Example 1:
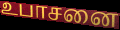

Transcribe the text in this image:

உபாசனை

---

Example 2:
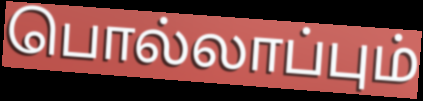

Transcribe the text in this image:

பொல்லாப்பும்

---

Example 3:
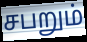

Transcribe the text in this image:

சபறும்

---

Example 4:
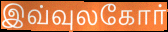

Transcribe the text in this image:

இவ்வுலகோர்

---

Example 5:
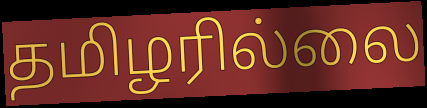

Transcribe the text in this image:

தமிழரில்லை